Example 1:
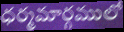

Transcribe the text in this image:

ధర్మమార్గములో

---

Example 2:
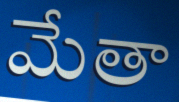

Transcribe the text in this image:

మేతా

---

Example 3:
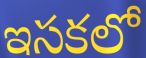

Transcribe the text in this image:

ఇసకలో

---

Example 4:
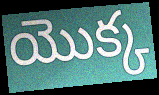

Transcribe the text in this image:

యొక్క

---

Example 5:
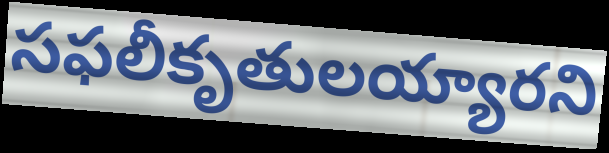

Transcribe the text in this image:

సఫలీకృతులయ్యారని